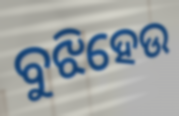
ବୁଝିହେଉ